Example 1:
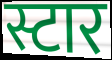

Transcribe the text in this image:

स्टार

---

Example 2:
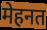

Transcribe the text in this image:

मेहनत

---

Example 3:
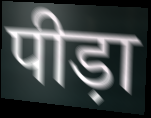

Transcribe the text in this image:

पीड़ा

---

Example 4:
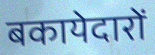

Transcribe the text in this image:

बकायेदारों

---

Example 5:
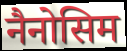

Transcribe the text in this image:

नैनोसिम